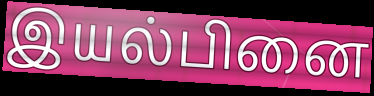
இயல்பினை